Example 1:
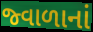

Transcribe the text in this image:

જ્વાળાનાં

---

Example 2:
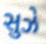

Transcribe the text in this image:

સુઝે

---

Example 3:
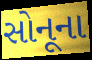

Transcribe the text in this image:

સોનૂના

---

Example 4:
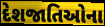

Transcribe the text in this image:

દેશજાતિઓના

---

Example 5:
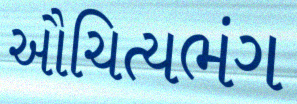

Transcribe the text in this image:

ઔચિત્યભંગ